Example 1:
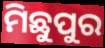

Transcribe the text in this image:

ମିଛୁପୁର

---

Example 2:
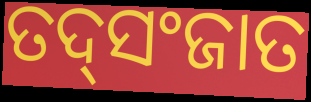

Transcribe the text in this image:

ତଦ୍‌ସଂଜାତ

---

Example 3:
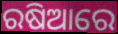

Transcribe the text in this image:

ରଷିଆରେ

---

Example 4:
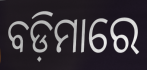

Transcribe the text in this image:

ବଡ଼ିମାରେ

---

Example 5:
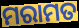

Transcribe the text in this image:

ମରାମତ